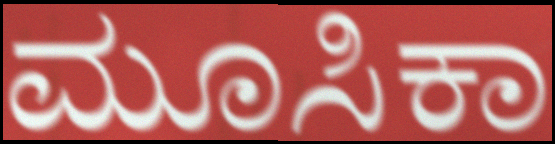
ಮೂಸಿಕಾ